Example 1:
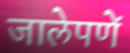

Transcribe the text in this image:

जालेपणें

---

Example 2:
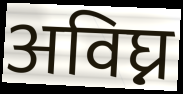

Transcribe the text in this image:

अविघ्न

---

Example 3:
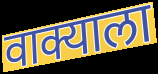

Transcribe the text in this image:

वाक्याला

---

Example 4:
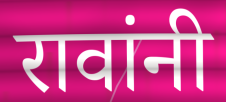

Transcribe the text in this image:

रावांनी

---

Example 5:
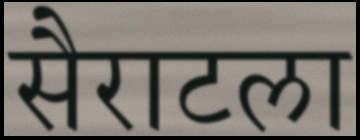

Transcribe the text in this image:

सैराटला